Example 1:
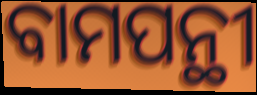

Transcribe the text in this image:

ବାମପନ୍ଥୀ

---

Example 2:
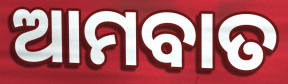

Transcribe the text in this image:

ଆମବାତ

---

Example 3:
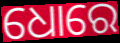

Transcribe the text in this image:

ଧୋରେ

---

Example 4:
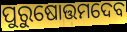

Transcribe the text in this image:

ପୁରୁଷୋତ୍ତମଦେବ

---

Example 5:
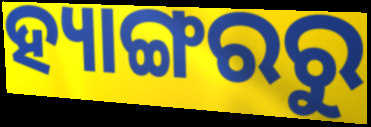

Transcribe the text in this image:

ହ୍ୟାଙ୍ଗରରୁ